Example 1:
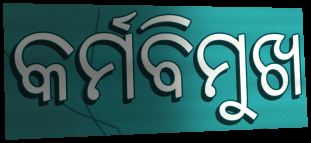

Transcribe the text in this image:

କର୍ମବିମୁଖ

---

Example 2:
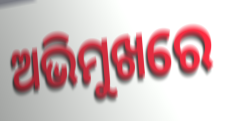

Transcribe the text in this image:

ଅଭିମୁଖରେ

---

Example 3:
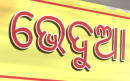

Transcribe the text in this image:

ଭେଦୁଆ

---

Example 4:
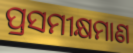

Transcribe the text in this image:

ପ୍ରସମୀକ୍ଷମାଣ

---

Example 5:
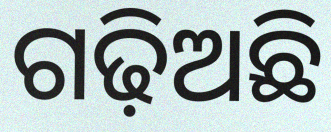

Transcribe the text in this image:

ଗଢ଼ିଅଛି